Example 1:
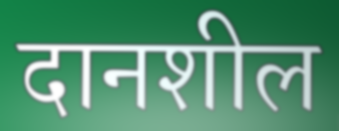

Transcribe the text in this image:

दानशील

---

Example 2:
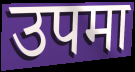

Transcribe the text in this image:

उपमा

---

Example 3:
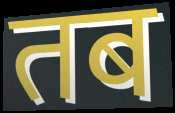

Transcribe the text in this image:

तब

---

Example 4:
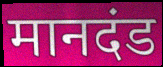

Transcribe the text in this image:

मानदंड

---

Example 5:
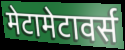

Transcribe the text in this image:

मेटामेटावर्स